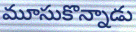
మూసుకొన్నాడు